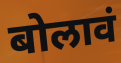
बोलावं